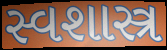
સ્વશાસ્ત્ર